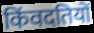
किंवदतियों